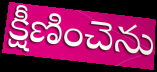
క్షీణించెను